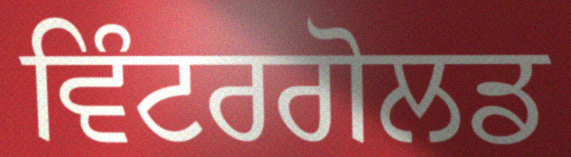
ਵਿੰਟਰਗੋਲਡ